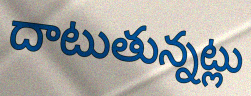
దాటుతున్నట్లు